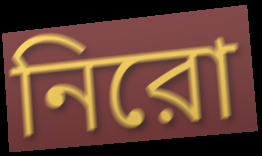
নিরো